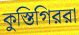
কুস্তিগিররা